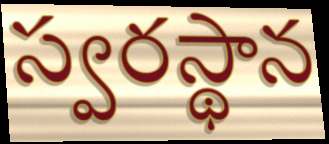
స్వరస్థాన